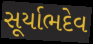
સૂર્યાભદેવ